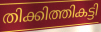
തിക്കിത്തികട്ടി